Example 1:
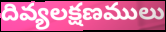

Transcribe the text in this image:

దివ్యలక్షణములు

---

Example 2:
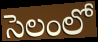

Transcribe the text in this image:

సెలంలో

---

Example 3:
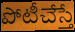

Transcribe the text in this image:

పోటీచేస్తే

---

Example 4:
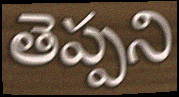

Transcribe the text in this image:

తెప్పని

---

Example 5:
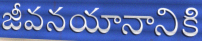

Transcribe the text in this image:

జీవనయానానికి